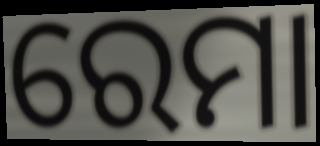
ରେମା